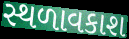
સ્થળાવકાશ